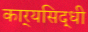
कार्यसिद्धी